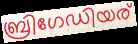
ബ്രിഗേഡിയര്